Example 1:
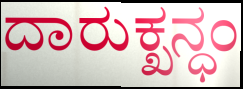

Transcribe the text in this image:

ದಾರುಕ್ಖನ್ಧಂ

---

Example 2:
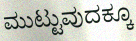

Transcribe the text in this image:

ಮುಟ್ಟುವುದಕ್ಕೂ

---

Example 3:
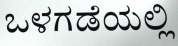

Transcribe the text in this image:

ಒಳಗಡೆಯಲ್ಲಿ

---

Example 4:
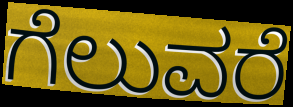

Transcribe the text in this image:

ಗೆಲುವರೆ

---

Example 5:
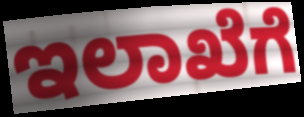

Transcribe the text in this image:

ಇಲಾಖೆಗೆ